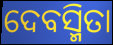
ଦେବସ୍ମିତା